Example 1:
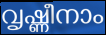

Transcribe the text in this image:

വൃഷ്ണീനാം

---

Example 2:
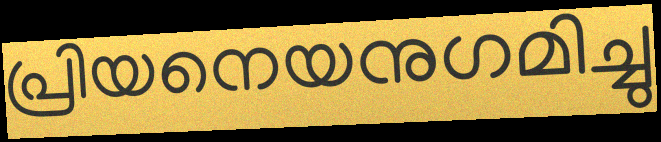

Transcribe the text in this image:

പ്രിയനെയനുഗമിച്ചു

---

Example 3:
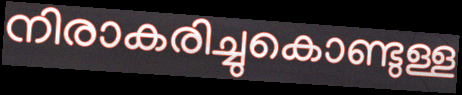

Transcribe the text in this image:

നിരാകരിച്ചുകൊണ്ടുള്ള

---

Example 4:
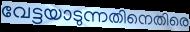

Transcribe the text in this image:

വേട്ടയാടുന്നതിനെതിരെ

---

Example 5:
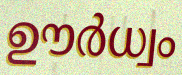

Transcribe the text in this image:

ഊർധ്വം